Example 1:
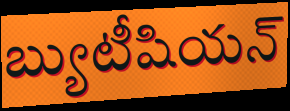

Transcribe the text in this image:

బ్యుటీషియన్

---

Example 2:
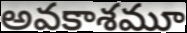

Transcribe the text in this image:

అవకాశమూ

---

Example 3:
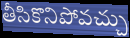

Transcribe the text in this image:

తీసికొనిపోవచ్చు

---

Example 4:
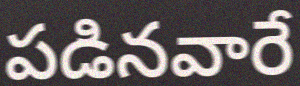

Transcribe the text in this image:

పడినవారే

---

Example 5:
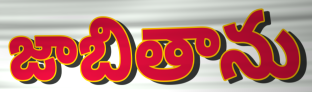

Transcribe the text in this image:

జాబితాను